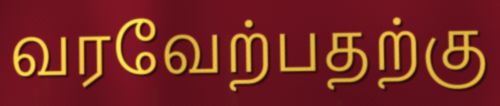
வரவேற்பதற்கு